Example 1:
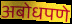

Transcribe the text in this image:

अबोधपणे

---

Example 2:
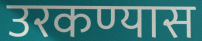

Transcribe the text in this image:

उरकण्यास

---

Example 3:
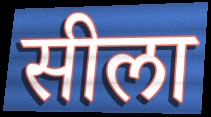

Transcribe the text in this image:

सीला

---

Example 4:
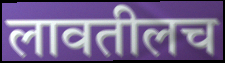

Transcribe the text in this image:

लावतीलच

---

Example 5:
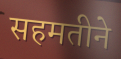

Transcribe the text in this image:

सहमतीने